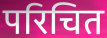
परिचित